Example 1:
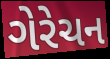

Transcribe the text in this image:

ગેરેચન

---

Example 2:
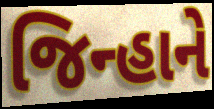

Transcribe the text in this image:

જિન્હાને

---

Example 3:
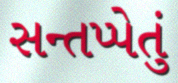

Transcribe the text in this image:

સન્તપ્પેતું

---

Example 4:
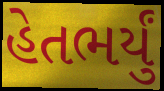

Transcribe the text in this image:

હેતભર્યું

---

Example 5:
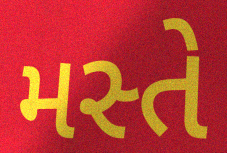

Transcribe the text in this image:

મસ્તે